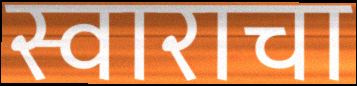
स्वाराचा